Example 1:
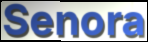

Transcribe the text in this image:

Senora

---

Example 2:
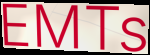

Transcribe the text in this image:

EMTs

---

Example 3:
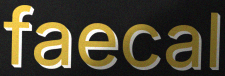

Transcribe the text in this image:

faecal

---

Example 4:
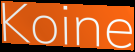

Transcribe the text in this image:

Koine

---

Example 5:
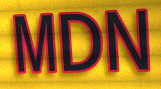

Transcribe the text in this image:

MDN